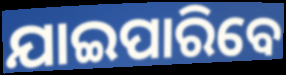
ଯାଇପାରିବେ